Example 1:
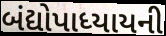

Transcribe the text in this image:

બંદ્યોપાધ્યાયની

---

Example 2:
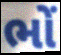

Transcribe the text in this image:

ભોં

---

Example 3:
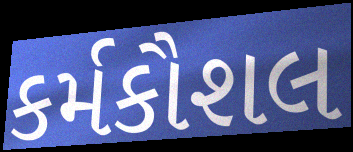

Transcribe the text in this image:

કર્મકૌશલ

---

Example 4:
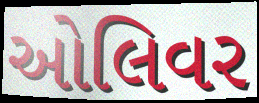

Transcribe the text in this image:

ઓલિવર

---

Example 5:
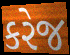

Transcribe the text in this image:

કરેજ